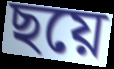
ছয়ে